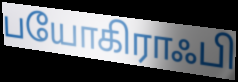
பயோகிராஃபி